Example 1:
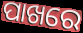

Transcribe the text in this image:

ପାଖରେ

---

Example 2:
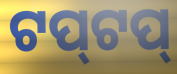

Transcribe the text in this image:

ଟପ୍‌ଟପ୍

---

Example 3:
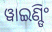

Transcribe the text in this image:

ୱାଇଣ୍ଡିଂ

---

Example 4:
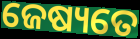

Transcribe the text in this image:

ଜେଷ୍ୟତେ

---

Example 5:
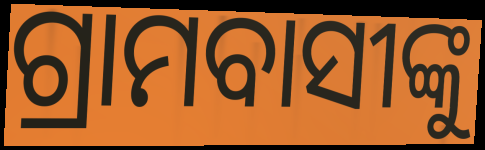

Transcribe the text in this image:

ଗ୍ରାମବାସୀଙ୍କୁ